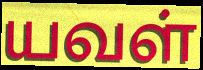
யவள்